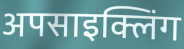
अपसाइक्लिंग